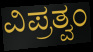
ವಿಪ್ರತ್ವಂ